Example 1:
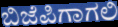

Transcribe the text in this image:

ಬಿಜೆಪಿಗಾಗಲಿ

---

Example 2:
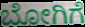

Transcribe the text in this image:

ಬೋಗಿಗೆ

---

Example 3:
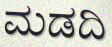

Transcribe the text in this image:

ಮಡದಿ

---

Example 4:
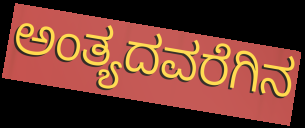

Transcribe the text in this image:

ಅಂತ್ಯದವರೆಗಿನ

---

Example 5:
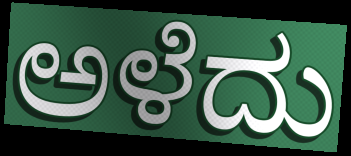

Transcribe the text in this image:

ಅಳೆದು